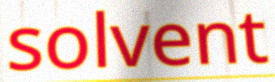
solvent